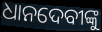
ଧାନଦେବୀଙ୍କୁ